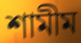
শামীম